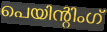
പെയിന്റിംഗ്